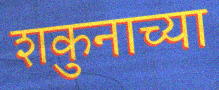
शकुनाच्या